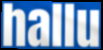
hallu